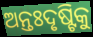
ଅନ୍ତଃଦୃଷ୍ଟିକୁ